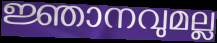
ജ്ഞാനവുമല്ല